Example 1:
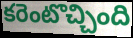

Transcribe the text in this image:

కరెంటొచ్చింది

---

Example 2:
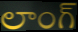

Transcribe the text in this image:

లాంగ్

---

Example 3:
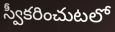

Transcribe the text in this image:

స్వీకరించుటలో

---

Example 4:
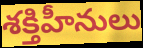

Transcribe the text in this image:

శక్తిహీనులు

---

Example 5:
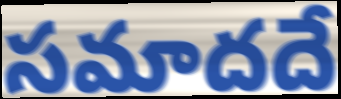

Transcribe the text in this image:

సమాదదే